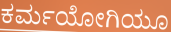
ಕರ್ಮಯೋಗಿಯೂ